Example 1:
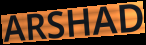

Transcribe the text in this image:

ARSHAD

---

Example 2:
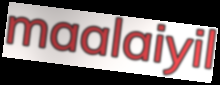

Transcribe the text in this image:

maalaiyil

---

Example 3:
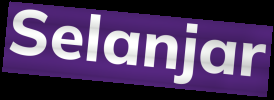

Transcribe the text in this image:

Selanjar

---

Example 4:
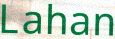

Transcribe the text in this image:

Lahan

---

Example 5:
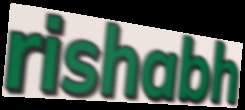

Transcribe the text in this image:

rishabh